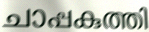
ചാപ്പകുത്തി